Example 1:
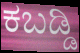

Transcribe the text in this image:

ಕಬಡ್ಡಿ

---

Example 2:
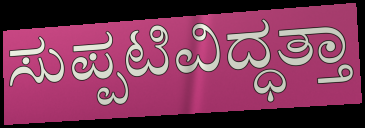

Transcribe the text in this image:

ಸುಪ್ಪಟಿವಿದ್ಧತ್ತಾ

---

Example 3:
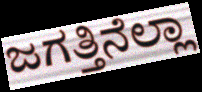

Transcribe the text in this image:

ಜಗತ್ತಿನೆಲ್ಲಾ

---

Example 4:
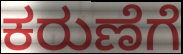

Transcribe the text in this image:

ಕರುಣೆಗೆ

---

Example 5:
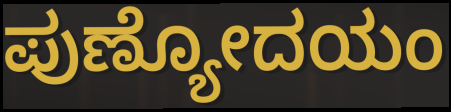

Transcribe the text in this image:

ಪುಣ್ಯೋದಯಂ